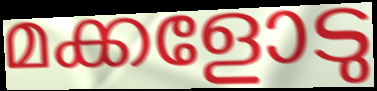
മക്കളോടു